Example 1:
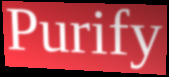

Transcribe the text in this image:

Purify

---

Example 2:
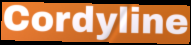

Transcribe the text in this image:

Cordyline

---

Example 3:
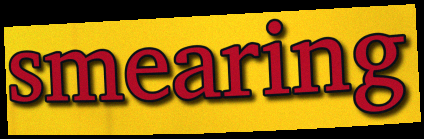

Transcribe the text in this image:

smearing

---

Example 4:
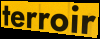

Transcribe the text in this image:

terroir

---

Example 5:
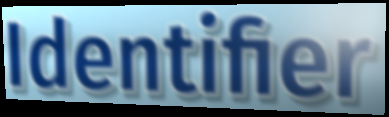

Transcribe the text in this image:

Identifier